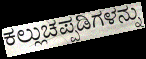
ಕಲ್ಲುಚಪ್ಪಡಿಗಳನ್ನು